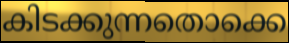
കിടക്കുന്നതൊക്കെ